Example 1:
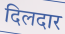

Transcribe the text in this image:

दिलदार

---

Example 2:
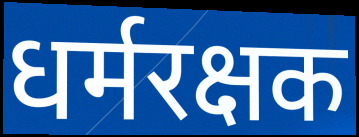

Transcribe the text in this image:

धर्मरक्षक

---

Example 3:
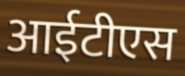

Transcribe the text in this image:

आईटीएस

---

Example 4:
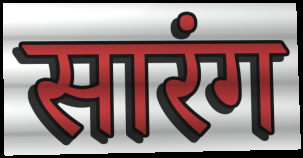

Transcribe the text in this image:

सारंग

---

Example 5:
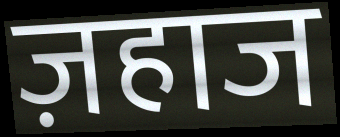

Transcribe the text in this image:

ज़हाज